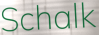
Schalk